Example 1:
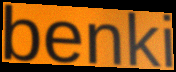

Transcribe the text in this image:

benki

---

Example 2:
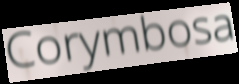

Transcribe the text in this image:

Corymbosa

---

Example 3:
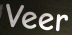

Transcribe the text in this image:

Veer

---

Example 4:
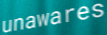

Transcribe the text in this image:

unawares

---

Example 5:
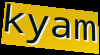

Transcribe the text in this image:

kyam